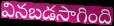
వినబడసాగింది